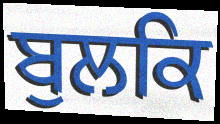
ਬੁਲਕਿ